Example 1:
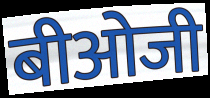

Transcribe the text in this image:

बीओजी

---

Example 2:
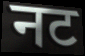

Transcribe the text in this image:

नट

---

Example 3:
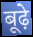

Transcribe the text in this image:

बूढ़े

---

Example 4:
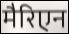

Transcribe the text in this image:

मैरिएन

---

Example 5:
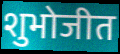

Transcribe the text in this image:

शुभोजीत